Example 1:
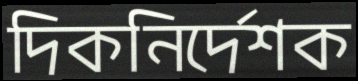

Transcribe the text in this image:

দিকনির্দেশক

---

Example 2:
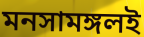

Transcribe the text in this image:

মনসামঙ্গলই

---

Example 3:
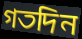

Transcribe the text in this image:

গতদিন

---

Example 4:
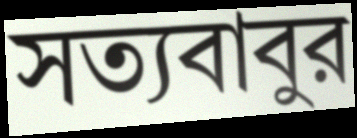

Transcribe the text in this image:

সত্যবাবুর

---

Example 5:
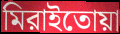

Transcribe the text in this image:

মিরাইতোয়া